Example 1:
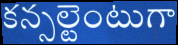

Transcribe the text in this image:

కన్సల్టెంటుగా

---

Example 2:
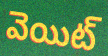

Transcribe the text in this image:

వెయిట్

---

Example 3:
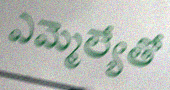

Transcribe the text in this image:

ఎమ్మెల్యేతో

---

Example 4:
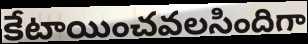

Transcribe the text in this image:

కేటాయించవలసిందిగా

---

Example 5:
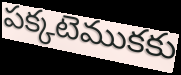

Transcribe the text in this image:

పక్కటెముకకు